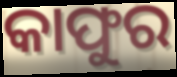
କାଫୁର